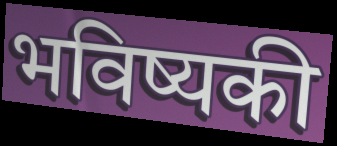
भविष्यकी